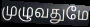
முழுவதுமே